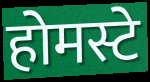
होमस्टे